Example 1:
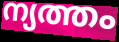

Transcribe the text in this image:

ന്യത്തം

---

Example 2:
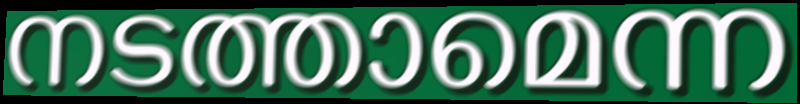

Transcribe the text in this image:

നടത്താമെന്ന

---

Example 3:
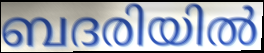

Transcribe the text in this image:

ബദരിയിൽ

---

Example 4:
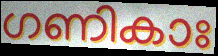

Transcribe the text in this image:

ഗണികാഃ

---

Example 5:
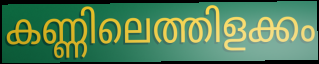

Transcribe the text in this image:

കണ്ണിലെത്തിളക്കം